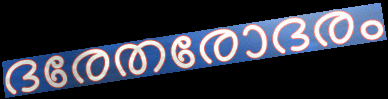
ദരേതരോദരം